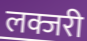
लक्जरी